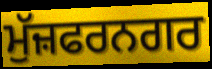
ਮੁੱਜ਼ਫਰਨਗਰ